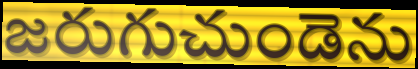
జరుగుచుండెను